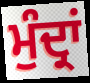
ਮੁੰਦ੍ਰਾਂ